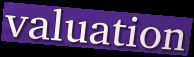
valuation